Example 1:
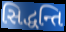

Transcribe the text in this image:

સિદ્ધન્તિ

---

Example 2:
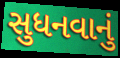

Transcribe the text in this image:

સુધનવાનું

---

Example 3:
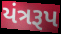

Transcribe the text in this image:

યંત્રરૂપ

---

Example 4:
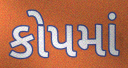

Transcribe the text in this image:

કોપમાં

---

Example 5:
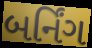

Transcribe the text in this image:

બર્નિંગ